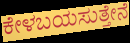
ಕೇಳಬಯಸುತ್ತೇನೆ